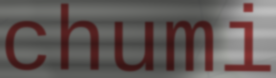
chumi